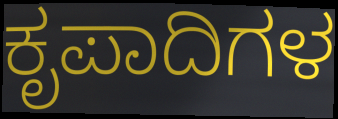
ಕೃಪಾದಿಗಳ